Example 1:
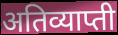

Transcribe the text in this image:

अतिव्याप्ती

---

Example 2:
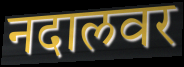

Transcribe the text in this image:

नदालवर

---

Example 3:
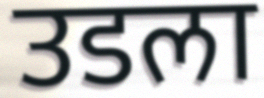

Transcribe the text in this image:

उडला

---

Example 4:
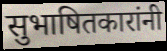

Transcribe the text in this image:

सुभाषितकारांनी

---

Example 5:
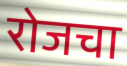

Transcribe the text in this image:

रोजचा